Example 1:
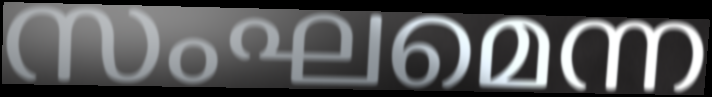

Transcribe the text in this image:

സംഘമെന്ന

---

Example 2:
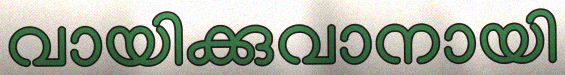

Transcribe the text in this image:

വായിക്കുവാനായി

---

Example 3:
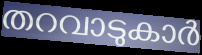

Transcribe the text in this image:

തറവാടുകാർ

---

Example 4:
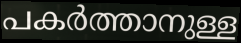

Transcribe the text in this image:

പകർത്താനുള്ള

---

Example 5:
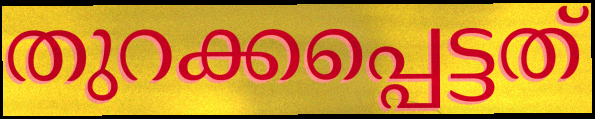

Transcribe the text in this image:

തുറക്കപ്പെട്ടത്